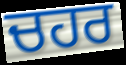
ਚਹਰ